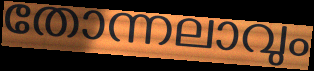
തോന്നലാവും